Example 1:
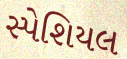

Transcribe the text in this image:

સ્પેશિયલ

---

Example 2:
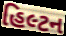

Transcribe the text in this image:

હિલ્ટન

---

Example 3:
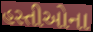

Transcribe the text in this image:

હસ્તીઓના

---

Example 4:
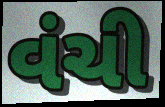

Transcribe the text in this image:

વંચી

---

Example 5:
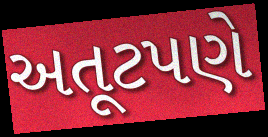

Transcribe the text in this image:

અતૂટપણે